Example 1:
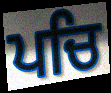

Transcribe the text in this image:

ਪਚਿ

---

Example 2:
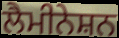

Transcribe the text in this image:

ਲੈਮੀਨੇਸ਼ਨ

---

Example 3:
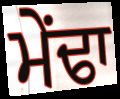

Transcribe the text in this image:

ਮੇਂਢਾ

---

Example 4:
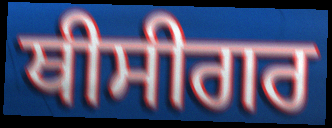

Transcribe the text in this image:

ਥੀਸੀਗਰ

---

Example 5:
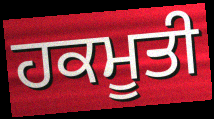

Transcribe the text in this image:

ਹਕਮੂਤੀ